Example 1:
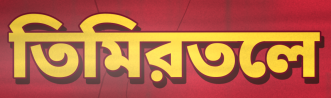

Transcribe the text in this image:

তিমিরতলে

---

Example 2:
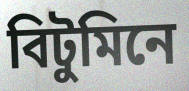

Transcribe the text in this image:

বিটুমিনে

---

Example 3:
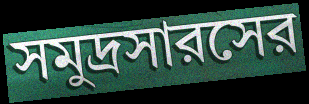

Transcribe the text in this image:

সমুদ্রসারসের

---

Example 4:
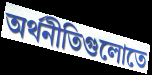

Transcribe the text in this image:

অর্থনীতিগুলোতে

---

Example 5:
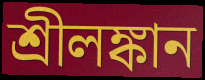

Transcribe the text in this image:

শ্রীলঙ্কান